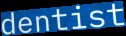
dentist